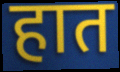
हात